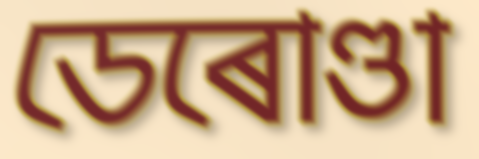
ডেৰোণ্ডা